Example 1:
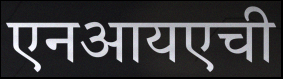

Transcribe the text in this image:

एनआयएची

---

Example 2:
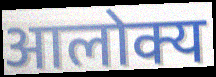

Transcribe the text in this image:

आलोक्य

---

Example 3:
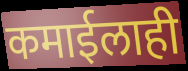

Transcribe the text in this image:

कमाईलाही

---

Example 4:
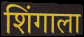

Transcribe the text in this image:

शिंगाला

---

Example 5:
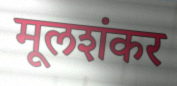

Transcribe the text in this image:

मूलशंकर